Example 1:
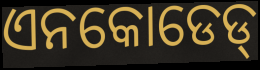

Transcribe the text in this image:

ଏନକୋଡେଡ୍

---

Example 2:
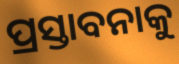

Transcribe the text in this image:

ପ୍ରସ୍ତାବନାକୁ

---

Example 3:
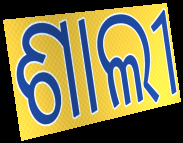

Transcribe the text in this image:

ଶାଲୀ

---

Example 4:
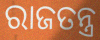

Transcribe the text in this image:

ରାଜତନ୍ତ୍ର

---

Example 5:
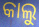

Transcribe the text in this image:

କାଲୁ